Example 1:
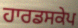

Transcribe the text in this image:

ਹਾਰਡਸਕੇਪ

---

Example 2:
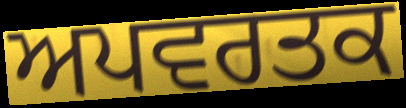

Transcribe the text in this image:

ਅਪਵਰਤਕ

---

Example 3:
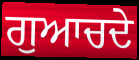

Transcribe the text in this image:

ਗੁਆਚਦੇ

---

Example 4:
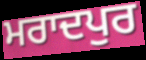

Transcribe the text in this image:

ਮਰਾਦਪੁਰ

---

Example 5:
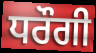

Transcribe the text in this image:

ਧਰੌਗੀ